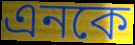
এনকে